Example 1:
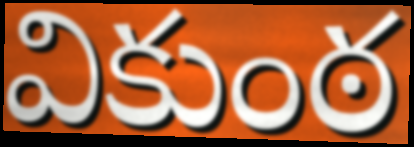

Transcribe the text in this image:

వికుంఠ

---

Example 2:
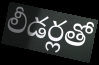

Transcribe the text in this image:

లీడర్లతో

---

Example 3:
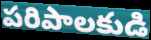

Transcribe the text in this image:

పరిపాలకుడి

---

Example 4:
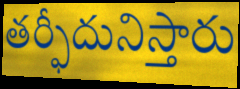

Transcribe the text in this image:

తర్ఫీదునిస్తారు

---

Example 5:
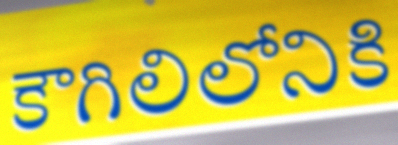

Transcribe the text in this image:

కౌగిలిలోనికి